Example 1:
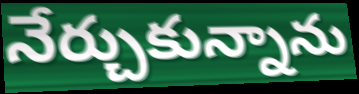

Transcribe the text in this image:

నేర్చుకున్నాను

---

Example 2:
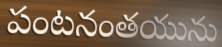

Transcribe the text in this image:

పంటనంతయును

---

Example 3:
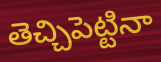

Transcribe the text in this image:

తెచ్చిపెట్టినా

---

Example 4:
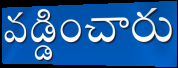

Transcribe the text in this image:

వడ్డించారు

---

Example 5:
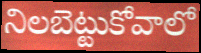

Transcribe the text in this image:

నిలబెట్టుకోవాలో